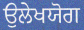
ਉਲੇਖਯੋਗ